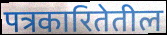
पत्रकारितेतील